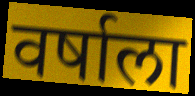
वर्षाला